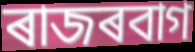
ৰাজৰবাগ